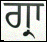
ਗ੍ਰਾ